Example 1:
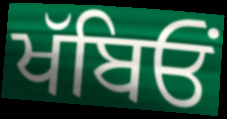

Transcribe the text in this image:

ਖੱਬਿਓਂ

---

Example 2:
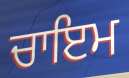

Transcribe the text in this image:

ਚਾਇਮ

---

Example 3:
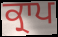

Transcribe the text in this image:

ਕ੍ਰਾਪ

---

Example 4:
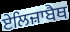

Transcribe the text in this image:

ਏਲਿਜ਼ਾਬੈਥ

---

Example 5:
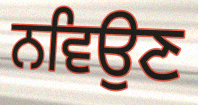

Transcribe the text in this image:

ਨਵਿਉਣ